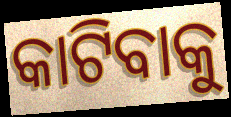
କାଟିବାକୁ